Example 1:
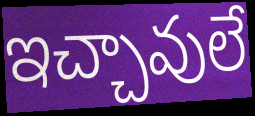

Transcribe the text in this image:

ఇచ్చావులే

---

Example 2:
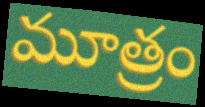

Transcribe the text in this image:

మూత్రం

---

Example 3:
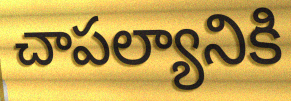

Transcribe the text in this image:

చాపల్యానికి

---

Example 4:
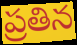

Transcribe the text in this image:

ప్రతిన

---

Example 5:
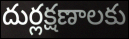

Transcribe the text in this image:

దుర్లక్షణాలకు